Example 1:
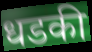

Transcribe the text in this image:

धडकी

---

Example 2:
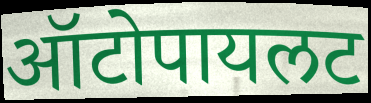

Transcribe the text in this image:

ऑटोपायलट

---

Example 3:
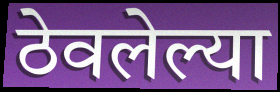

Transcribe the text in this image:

ठेवलेल्या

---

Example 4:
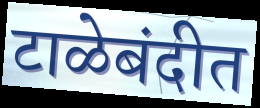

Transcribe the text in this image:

टाळेबंदीत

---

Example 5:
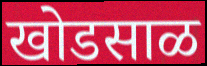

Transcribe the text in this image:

खोडसाळ